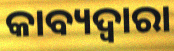
କାବ୍ୟଦ୍ୱାରା